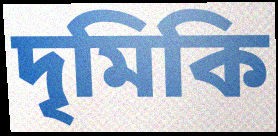
দৃমিকি